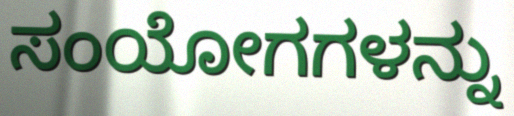
ಸಂಯೋಗಗಳನ್ನು